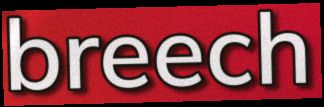
breech